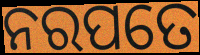
ନରପତେ